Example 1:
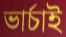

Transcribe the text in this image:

ভাৰ্চাই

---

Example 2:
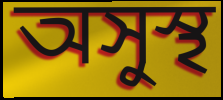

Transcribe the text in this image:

অসুস্থ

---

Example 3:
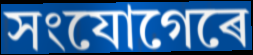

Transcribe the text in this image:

সংযোগেৰে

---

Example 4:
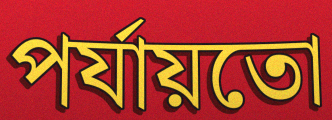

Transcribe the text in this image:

পৰ্যায়তো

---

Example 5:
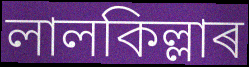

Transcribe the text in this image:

লালকিল্লাৰ